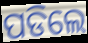
ପଡିଲେ